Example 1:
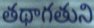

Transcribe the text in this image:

తథాగతుని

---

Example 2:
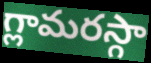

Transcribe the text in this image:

గ్లామరస్గా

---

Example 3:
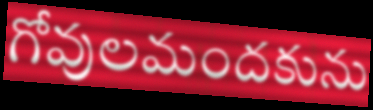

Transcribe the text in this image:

గోవులమందకును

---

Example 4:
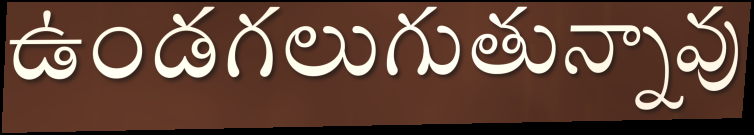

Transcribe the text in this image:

ఉండగలుగుతున్నావు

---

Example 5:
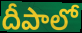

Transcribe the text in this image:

దీపాలో